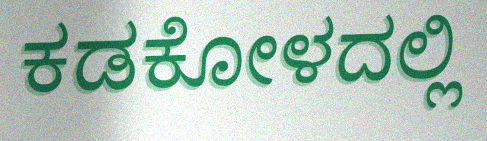
ಕಡಕೋಳದಲ್ಲಿ